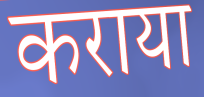
कराया